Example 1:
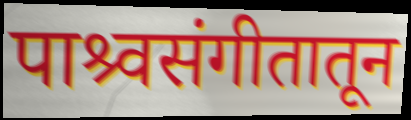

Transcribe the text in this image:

पाश्र्वसंगीतातून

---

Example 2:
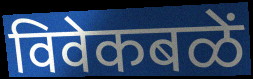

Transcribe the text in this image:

विवेकबळें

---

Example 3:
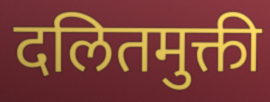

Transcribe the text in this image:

दलितमुक्ती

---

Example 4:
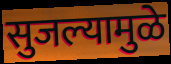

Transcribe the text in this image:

सुजल्यामुळे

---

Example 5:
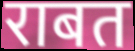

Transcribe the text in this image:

राबत